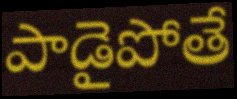
పాడైపోతే